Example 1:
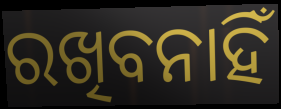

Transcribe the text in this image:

ରଖିବନାହିଁ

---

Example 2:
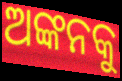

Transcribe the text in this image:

ଅଙ୍କନକୁ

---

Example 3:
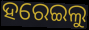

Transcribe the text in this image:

ହରେଇଲୁ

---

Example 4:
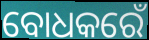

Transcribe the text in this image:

ବୋଧକରେଁ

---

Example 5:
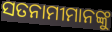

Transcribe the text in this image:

ସତନାମୀମାନଙ୍କୁ